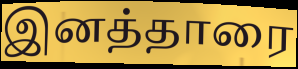
இனத்தாரை